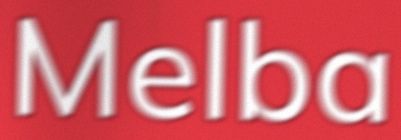
Melba